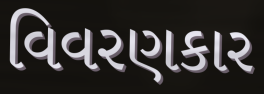
વિવરણકાર